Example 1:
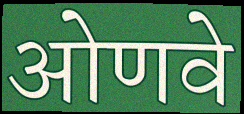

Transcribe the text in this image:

ओणवे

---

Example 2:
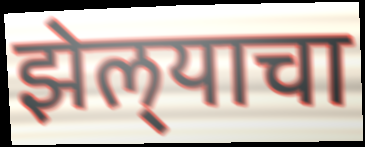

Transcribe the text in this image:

झेल्याचा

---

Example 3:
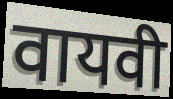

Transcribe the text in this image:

वायवी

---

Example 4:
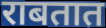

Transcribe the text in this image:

राबतात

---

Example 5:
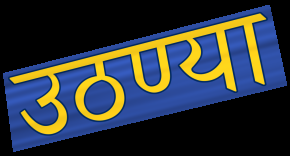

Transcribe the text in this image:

उठण्या